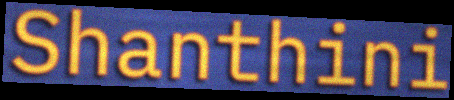
Shanthini